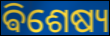
ଵିଶେଷ୍ୟ